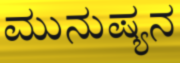
ಮುನುಷ್ಯನ